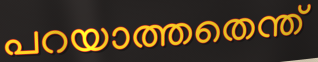
പറയാത്തതെന്ത്